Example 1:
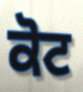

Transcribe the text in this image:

ਕੋਟ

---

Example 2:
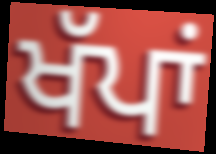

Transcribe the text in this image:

ਖੱਪਾਂ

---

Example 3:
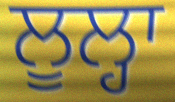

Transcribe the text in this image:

ਲੂਲ੍ਹਾ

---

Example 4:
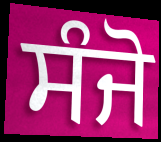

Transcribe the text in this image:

ਸੰਜੋ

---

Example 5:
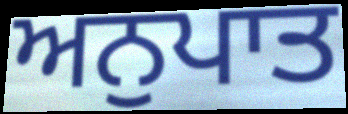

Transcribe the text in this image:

ਅਨੁਪਾਤ